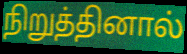
நிறுத்தினால்